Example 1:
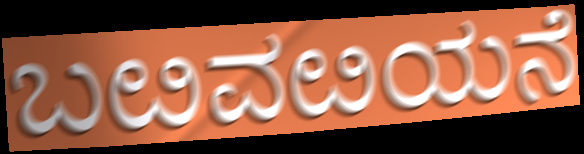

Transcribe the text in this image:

ಬೞವೞಯನೆ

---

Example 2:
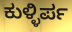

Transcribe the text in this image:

ಕುಳ್ಳಿರ್ಪ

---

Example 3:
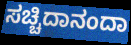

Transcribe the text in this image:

ಸಚ್ಚಿದಾನಂದಾ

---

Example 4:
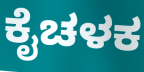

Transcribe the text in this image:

ಕೈಚಳಕ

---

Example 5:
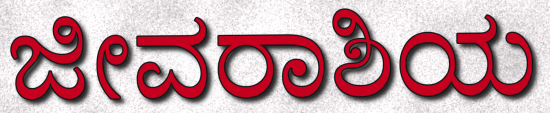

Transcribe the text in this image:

ಜೀವರಾಶಿಯ